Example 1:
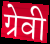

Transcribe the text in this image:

ग्रेवी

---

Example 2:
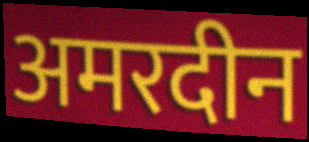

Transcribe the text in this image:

अमरदीन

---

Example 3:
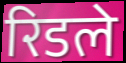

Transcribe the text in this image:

रिडले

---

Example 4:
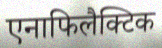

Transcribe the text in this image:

एनाफिलैक्टिक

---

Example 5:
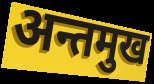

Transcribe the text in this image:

अन्तमुख